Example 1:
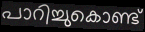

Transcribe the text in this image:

പാറിച്ചുകൊണ്ട്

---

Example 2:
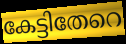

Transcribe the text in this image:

കേട്ടിതേറെ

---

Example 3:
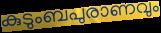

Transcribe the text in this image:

കുടുംബപുരാണവും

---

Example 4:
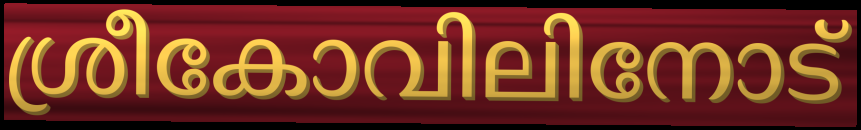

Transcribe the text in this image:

ശ്രീകോവിലിനോട്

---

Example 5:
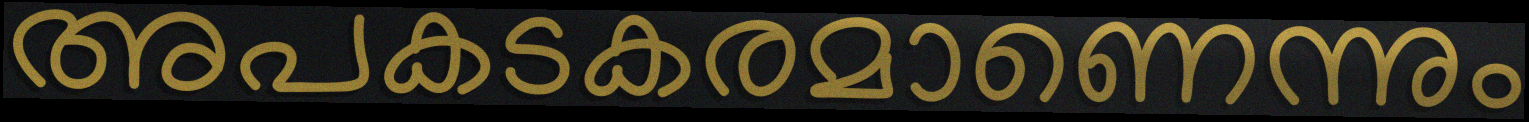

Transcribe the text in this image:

അപകടകരമാണെന്നും